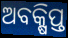
ଅବକ୍ଷିପ୍ତ